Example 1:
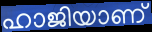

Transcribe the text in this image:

ഹാജിയാണ്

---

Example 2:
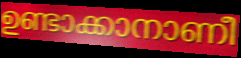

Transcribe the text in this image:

ഉണ്ടാക്കാനാണീ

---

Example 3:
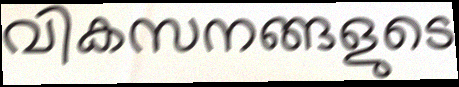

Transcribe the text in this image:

വികസനങ്ങളുടെ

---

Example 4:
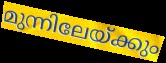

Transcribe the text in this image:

മുന്നിലേയ്ക്കും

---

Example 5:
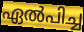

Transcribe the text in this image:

ഏൽപിച്ച